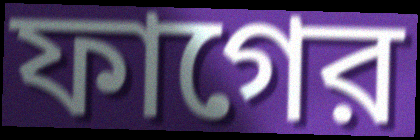
ফাগের